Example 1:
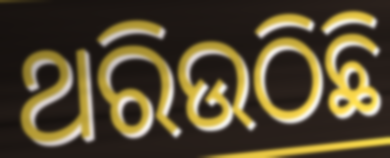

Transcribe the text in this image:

ଥରିଉଠିଛି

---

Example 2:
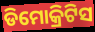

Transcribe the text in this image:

ଡିମୋକ୍ରିଟିସ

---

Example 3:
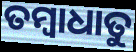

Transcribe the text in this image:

ତମ୍ବାଧାତୁ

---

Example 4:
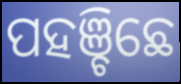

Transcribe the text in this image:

ପହଞ୍ଚିଛେ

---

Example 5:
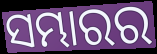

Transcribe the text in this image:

ସମ୍ଭାରର